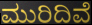
ಮುರಿದಿವೆ